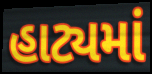
હાટ્યમાં